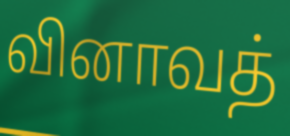
வினாவத்